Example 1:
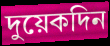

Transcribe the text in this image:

দুয়েকদিন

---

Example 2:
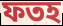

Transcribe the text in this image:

ফতহ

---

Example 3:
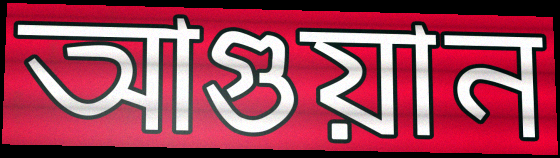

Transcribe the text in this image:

আগুয়ান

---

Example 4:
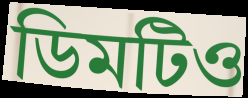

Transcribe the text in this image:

ডিমটিও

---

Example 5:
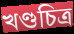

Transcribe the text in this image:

খণ্ডচিত্র